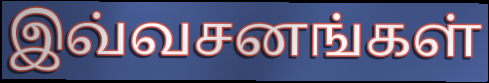
இவ்வசனங்கள்